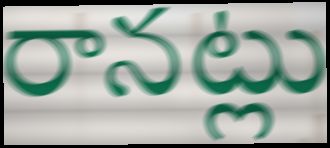
రానట్లు